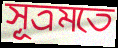
সূত্ৰমতে